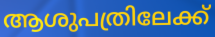
ആശുപത്രിലേക്ക്